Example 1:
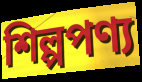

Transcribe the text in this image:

শিল্পপণ্য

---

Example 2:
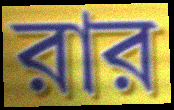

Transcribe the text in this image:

রার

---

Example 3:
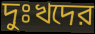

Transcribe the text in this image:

দুঃখদের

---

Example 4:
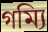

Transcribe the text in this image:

গম্যি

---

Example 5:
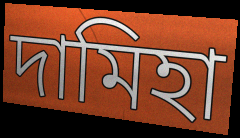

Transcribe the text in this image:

দামিহা